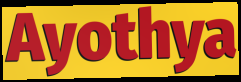
Ayothya